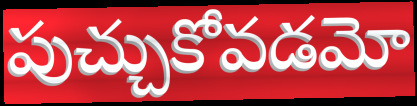
పుచ్చుకోవడమో